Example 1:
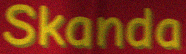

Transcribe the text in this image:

Skanda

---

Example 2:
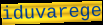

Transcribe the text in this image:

iduvarege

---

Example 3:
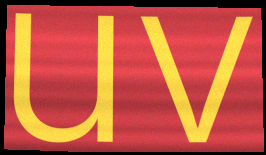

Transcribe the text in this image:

uv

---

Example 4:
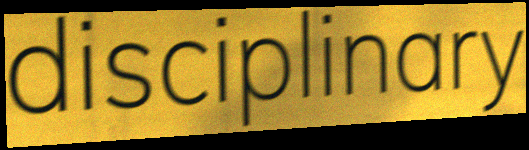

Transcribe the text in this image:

disciplinary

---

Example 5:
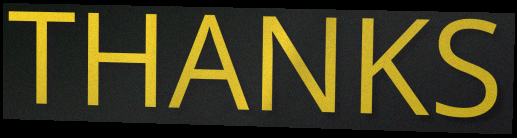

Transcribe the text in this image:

THANKS